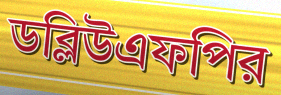
ডব্লিউএফপির